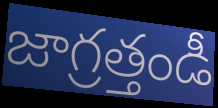
జాగ్రత్తండీ